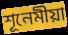
শূনেমীয়া